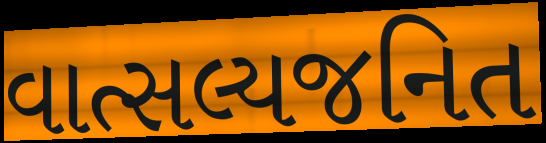
વાત્સલ્યજનિત